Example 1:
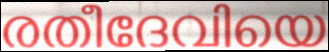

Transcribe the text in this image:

രതീദേവിയെ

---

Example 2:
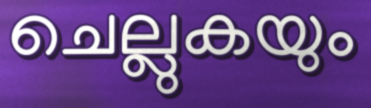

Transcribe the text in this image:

ചെല്ലുകയും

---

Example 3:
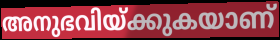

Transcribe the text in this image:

അനുഭവിയ്ക്കുകയാണ്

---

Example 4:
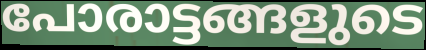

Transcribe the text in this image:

പോരാട്ടങ്ങളുടെ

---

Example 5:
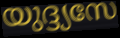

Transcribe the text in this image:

യുദ്ദ്യസേ